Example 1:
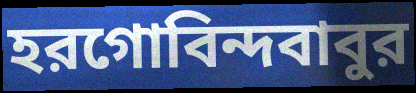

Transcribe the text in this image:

হরগোবিন্দবাবুর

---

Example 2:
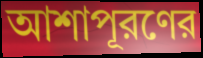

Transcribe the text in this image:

আশাপূরণের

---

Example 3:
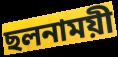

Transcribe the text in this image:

ছলনাময়ী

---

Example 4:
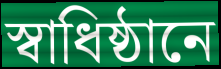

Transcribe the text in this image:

স্বাধিষ্ঠানে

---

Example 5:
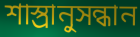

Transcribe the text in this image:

শাস্ত্রানুসন্ধান